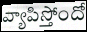
వ్యాపిస్తోందో